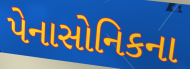
પેનાસોનિકના